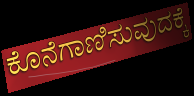
ಕೊನೆಗಾಣಿಸುವುದಕ್ಕೆ